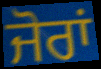
ਜੋਰਾਂ